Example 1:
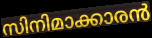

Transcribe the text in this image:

സിനിമാക്കാരൻ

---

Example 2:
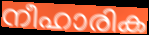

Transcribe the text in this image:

നീഹാരിക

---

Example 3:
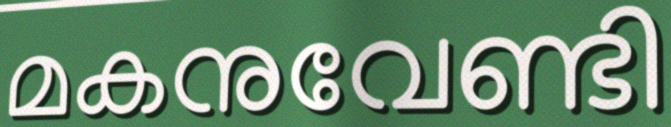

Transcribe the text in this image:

മകനുവേണ്ടി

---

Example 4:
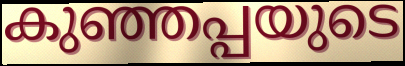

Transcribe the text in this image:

കുഞ്ഞപ്പയുടെ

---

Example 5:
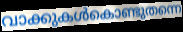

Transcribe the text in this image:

വാക്കുകൾകൊണ്ടുതന്നെ